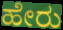
ಹೇರು